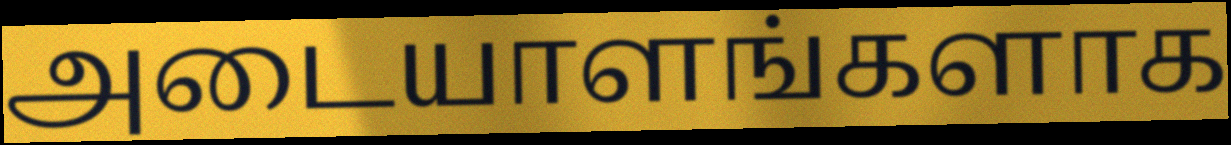
அடையாளங்களாக